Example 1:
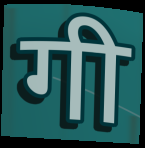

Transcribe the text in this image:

गी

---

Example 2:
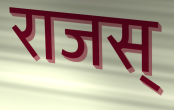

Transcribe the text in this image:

राजस्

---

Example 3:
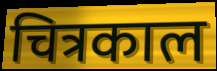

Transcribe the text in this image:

चित्रकाल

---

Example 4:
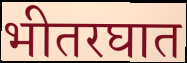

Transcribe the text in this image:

भीतरघात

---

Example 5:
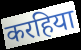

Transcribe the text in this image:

करहिया